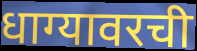
धाग्यावरची